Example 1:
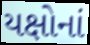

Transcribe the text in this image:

યક્ષોનાં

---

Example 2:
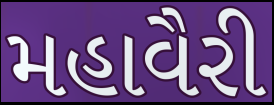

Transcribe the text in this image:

મહાવૈરી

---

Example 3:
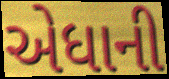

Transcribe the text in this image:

એધાની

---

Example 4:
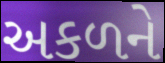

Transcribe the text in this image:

અકળને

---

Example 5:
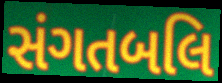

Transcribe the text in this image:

સંગતબલિ